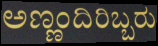
ಅಣ್ಣಂದಿರಿಬ್ಬರು